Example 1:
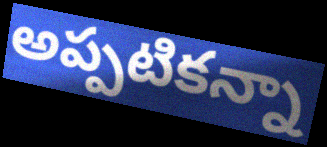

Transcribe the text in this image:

అప్పటికన్నా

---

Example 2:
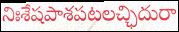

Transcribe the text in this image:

నిఃశేషపాశపటలచ్ఛిదురా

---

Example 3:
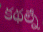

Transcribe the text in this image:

కథల్నే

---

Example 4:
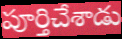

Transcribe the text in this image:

పూర్తిచేశాడు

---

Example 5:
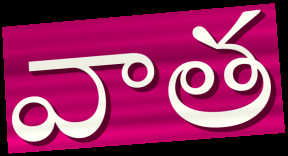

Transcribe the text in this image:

వాత